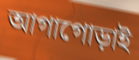
আগাগোড়াই